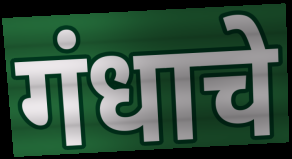
गंधाचे